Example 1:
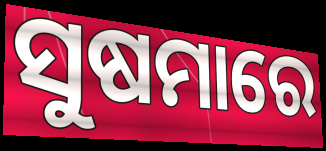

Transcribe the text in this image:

ସୁଷମାରେ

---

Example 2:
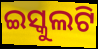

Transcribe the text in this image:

ଇସ୍କୁଲଟି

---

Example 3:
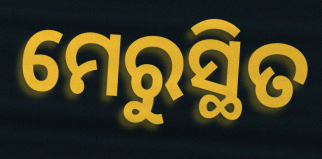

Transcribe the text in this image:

ମେରୁସ୍ଥିତ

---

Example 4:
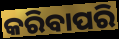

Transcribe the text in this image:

କରିବାପରି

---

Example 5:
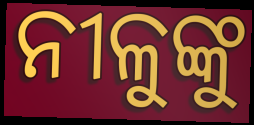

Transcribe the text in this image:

ନୀଳୁଙ୍କୁ